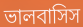
ভালবাসিস